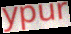
ypur